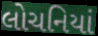
લોચનિયાં